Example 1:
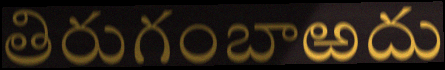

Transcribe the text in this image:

తిరుగంబాఱదు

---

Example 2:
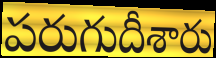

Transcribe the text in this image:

పరుగుదీశారు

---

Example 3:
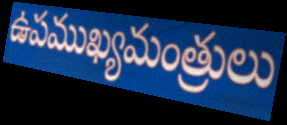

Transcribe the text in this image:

ఉపముఖ్యమంత్రులు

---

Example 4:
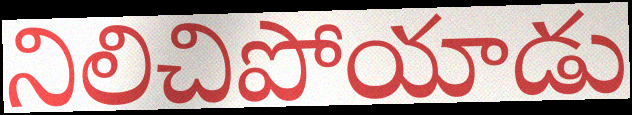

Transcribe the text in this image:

నిలిచిపోయాడు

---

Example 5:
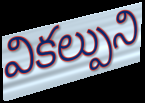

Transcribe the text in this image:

వికల్పుని